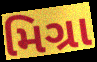
મિગ્રા